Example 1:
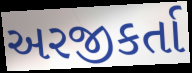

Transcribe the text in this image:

અરજીકર્તા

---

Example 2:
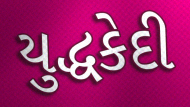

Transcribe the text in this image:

યુદ્ધકેદી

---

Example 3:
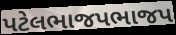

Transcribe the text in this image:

પટેલભાજપભાજપ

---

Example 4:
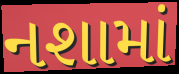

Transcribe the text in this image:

નશામાં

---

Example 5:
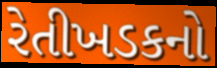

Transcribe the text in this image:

રેતીખડકનો